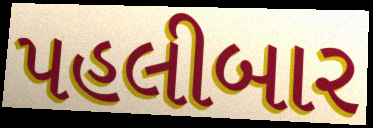
પહલીબાર